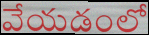
వేయడంలో